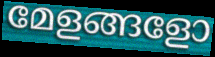
മേളങ്ങളോ